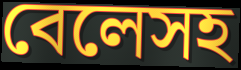
বেলেসহ